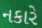
નકારે